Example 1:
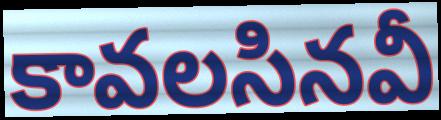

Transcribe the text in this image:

కావలసినవీ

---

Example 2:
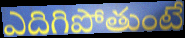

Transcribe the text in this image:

ఎదిగిపోతుంటే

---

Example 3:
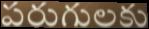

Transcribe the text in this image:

పరుగులకు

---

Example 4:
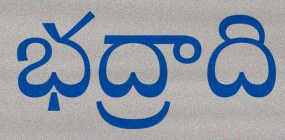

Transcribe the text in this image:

భద్రాది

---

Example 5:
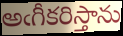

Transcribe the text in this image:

అఁగీకరిస్తాను